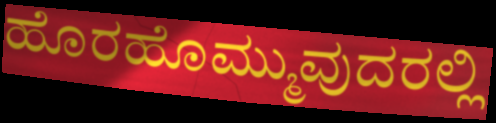
ಹೊರಹೊಮ್ಮುವುದರಲ್ಲಿ